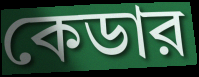
কেডার